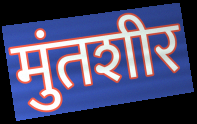
मुंतशीर